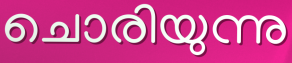
ചൊരിയുന്നു